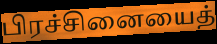
பிரச்சினையைத்